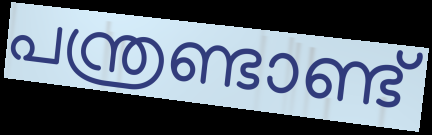
പന്ത്രണ്ടാണ്ട്